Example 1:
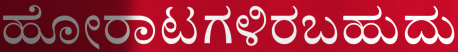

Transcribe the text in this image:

ಹೋರಾಟಗಳಿರಬಹುದು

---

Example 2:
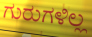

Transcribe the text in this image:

ಗುರುಗಳಿಲ್ಲ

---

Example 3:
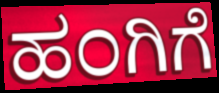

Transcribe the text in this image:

ಹಂಗಿಗೆ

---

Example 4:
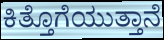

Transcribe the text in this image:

ಕಿತ್ತೊಗೆಯುತ್ತಾನೆ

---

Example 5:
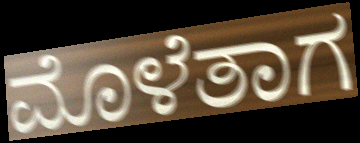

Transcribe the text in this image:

ಮೊಳೆತಾಗ